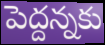
పెద్దన్నకు